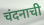
चंदनाची